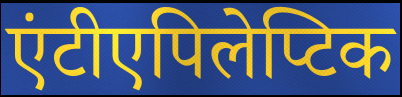
एंटीएपिलेप्टिक